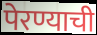
पेरण्याची